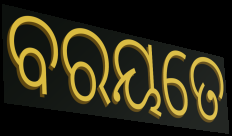
ବରୟତେ